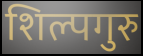
शिल्पगुरु